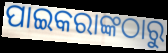
ପାଇକରାଙ୍କଠାରୁ